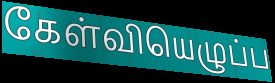
கேள்வியெழுப்ப